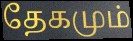
தேகமும்